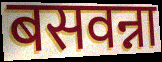
बसवन्ना